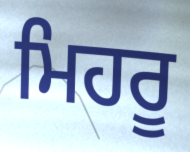
ਮਿਹਰੂ